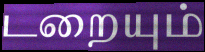
டறையும்